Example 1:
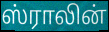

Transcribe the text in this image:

ஸ்ராலின்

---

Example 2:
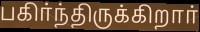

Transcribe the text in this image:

பகிர்ந்திருக்கிறார்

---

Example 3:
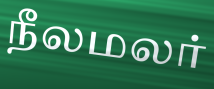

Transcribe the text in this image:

நீலமலர்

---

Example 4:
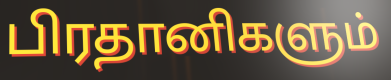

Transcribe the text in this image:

பிரதானிகளும்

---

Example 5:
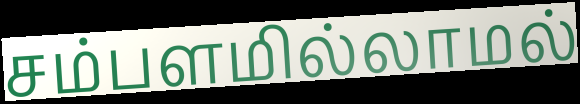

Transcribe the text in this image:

சம்பளமில்லாமல்